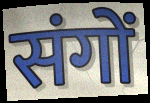
संगों